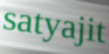
satyajit